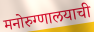
मनोरुग्णालयाची